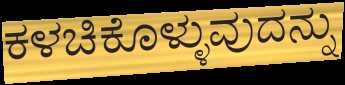
ಕಳಚಿಕೊಳ್ಳುವುದನ್ನು